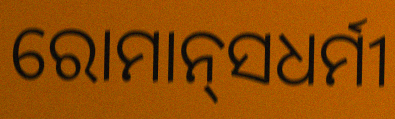
ରୋମାନ୍‌ସଧର୍ମୀ